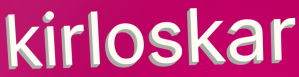
kirloskar